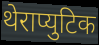
थेराप्युटिक